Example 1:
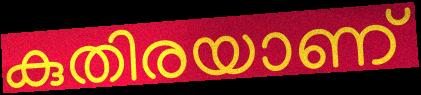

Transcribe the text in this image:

കുതിരയാണ്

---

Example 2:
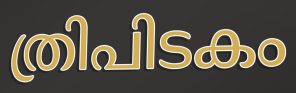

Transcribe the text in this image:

ത്രിപിടകം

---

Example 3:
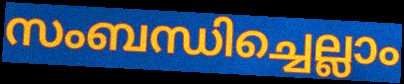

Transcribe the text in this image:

സംബന്ധിച്ചെല്ലാം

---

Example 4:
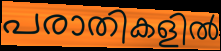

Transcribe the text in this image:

പരാതികളിൽ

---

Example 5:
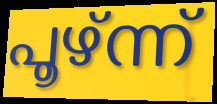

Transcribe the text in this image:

പൂഴ്ന്ന്